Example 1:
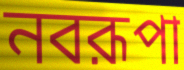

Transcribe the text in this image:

নবরূপা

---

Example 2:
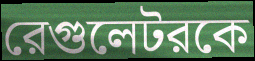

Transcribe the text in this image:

রেগুলেটরকে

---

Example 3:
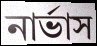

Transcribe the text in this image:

নার্ভাস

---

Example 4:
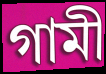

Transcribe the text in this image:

গামী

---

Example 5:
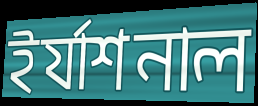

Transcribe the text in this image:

ইর্যাশনাল